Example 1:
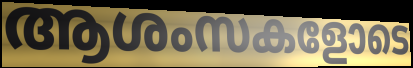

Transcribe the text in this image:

ആശംസകളോടെ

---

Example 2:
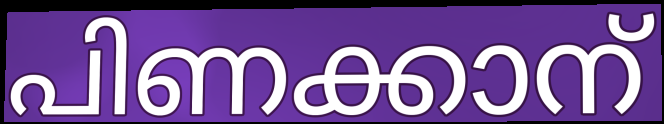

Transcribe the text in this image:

പിണക്കാന്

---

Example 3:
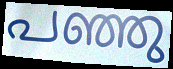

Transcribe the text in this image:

പഞ്ഞു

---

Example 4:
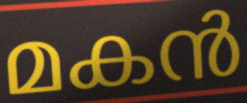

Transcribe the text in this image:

മകൻ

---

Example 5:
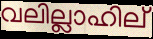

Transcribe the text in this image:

വലില്ലാഹില്